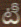
టీ